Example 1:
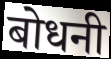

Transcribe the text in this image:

बोधनी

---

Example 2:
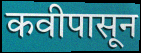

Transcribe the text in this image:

कवीपासून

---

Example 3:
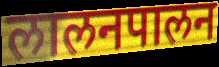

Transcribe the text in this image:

लालनपालन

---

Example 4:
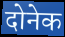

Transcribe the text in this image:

दोनेक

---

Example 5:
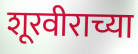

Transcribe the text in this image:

शूरवीराच्या